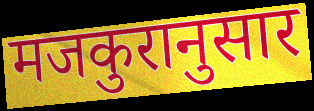
मजकुरानुसार